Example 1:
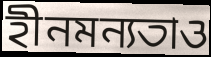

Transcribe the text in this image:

হীনমন্যতাও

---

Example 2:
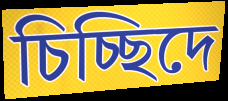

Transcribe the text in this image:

চিচ্ছিদে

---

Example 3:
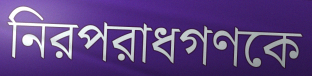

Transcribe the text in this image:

নিরপরাধগণকে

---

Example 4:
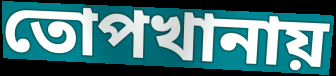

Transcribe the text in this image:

তোপখানায়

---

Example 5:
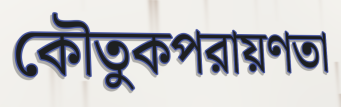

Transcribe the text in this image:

কৌতুকপরায়ণতা